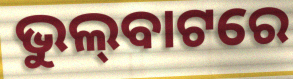
ଭୁଲ୍‌ବାଟରେ